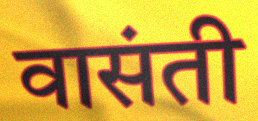
वासंती